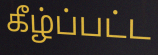
கீழ்ப்பட்ட